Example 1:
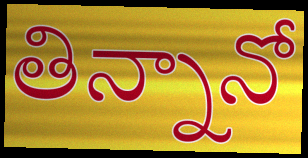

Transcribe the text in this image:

తిన్నానో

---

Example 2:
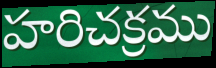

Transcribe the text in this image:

హరిచక్రము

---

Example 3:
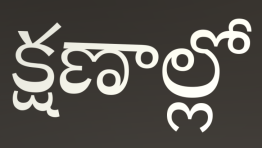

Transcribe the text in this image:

క్షణాల్లో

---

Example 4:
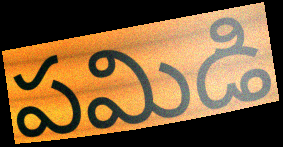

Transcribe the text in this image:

పమిడి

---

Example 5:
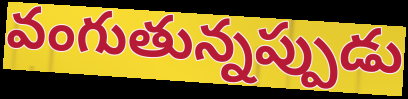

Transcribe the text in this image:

వంగుతున్నప్పుడు